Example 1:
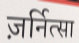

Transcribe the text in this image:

ज़र्नित्सा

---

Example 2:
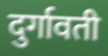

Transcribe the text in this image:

दुर्गावती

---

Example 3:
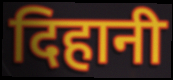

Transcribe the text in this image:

दिहानी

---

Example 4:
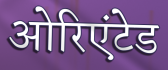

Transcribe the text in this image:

ओरिएंटेड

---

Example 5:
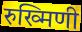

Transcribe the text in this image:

रुख्मिणी